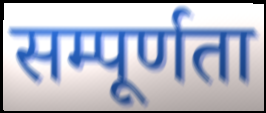
सम्पूर्णता